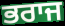
ਭਰਾਜ